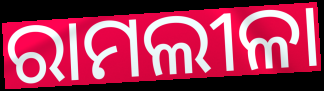
ରାମଲୀଳା